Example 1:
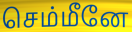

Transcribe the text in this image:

செம்மீனே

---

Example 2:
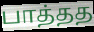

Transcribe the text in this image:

பாத்தத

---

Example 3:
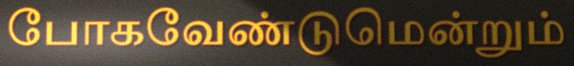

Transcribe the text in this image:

போகவேண்டுமென்றும்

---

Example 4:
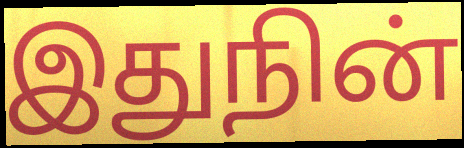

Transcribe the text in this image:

இதுநின்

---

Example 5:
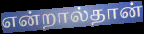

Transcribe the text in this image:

என்றால்தான்